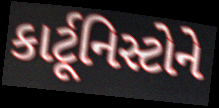
કાર્ટૂનિસ્ટોને